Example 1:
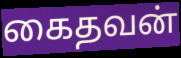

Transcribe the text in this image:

கைதவன்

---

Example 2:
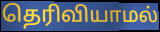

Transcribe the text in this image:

தெரிவியாமல்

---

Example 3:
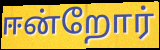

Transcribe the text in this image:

ஈன்றோர்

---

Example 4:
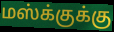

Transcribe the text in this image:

மஸ்க்குக்கு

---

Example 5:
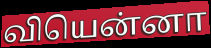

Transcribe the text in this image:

வியென்னா